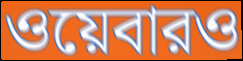
ওয়েবারও